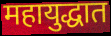
महायुद्धात